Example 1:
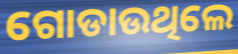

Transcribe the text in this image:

ଗୋଡାଉଥିଲେ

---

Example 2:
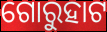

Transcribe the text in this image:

ଗୋରୁହାଟ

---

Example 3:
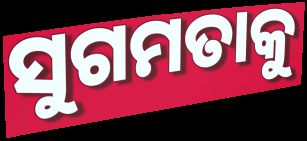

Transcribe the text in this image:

ସୁଗମତାକୁ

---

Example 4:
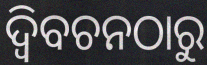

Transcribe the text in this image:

ଦ୍ବିବଚନଠାରୁ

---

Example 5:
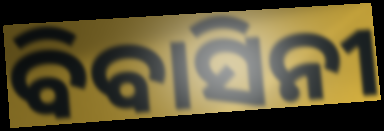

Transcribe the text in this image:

ବିବାସିନୀ